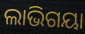
ଲାଭିଗୟା